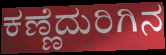
ಕಣ್ಣೆದುರಿಗಿನ